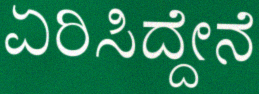
ಏರಿಸಿದ್ದೇನೆ